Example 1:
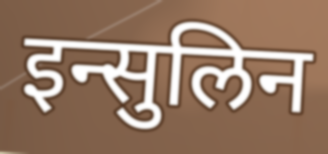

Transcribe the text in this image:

इन्सुलिन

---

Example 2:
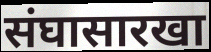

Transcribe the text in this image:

संघासारखा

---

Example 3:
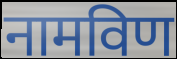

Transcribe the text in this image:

नामविण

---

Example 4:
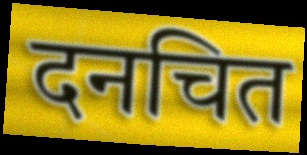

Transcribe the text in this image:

दनचित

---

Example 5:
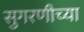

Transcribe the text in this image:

सुगरणीच्या